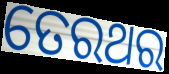
ତେରଥର